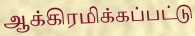
ஆக்கிரமிக்கப்பட்டு